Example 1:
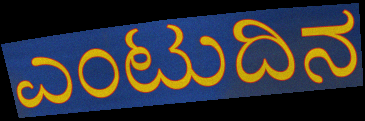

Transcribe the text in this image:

ಎಂಟುದಿನ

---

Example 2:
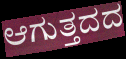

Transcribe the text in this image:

ಆಗುತ್ತದದ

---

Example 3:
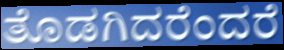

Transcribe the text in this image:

ತೊಡಗಿದರೆಂದರೆ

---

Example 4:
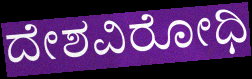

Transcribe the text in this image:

ದೇಶವಿರೋಧಿ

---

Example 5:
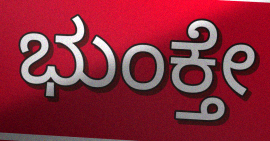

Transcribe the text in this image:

ಭುಂಕ್ತೇ